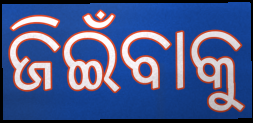
ଜିଇଁବାକୁ